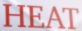
HEAT